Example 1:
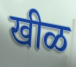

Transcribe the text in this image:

खीळ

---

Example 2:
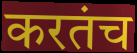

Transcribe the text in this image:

करतंच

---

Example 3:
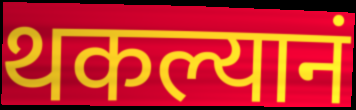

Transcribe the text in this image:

थकल्यानं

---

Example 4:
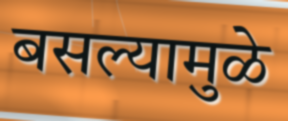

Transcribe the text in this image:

बसल्यामुळे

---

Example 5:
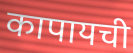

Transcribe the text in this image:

कापायची